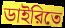
ডাইরিতে